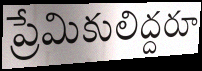
ప్రేమికులిద్దరూ